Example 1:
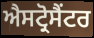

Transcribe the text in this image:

ਐਸਟ੍ਰੋਸੈਂਟਰ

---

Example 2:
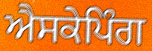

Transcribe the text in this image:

ਐਸਕੇਪਿੰਗ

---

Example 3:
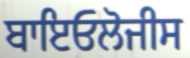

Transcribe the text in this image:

ਬਾਇਓਲੋਜੀਸ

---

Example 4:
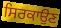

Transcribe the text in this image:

ਸਿਰਕਾਉਣ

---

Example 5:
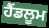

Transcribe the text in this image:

ਹੈਂਡਲੂਮ